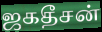
ஜகதீசன்